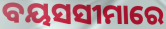
ବୟସସୀମାରେ